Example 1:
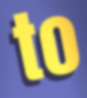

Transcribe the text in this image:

to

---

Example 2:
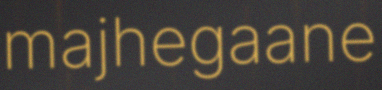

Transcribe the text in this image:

majhegaane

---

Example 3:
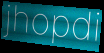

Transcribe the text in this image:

jhopdi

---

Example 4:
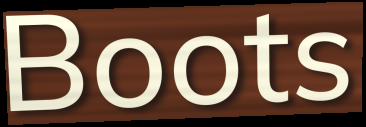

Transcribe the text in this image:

Boots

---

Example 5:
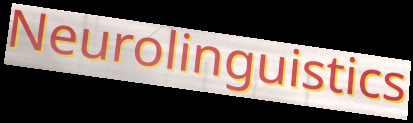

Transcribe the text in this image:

Neurolinguistics